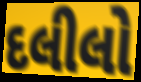
દલીલો